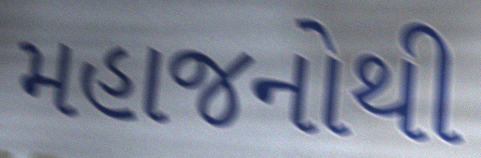
મહાજનોથી